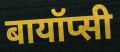
बायॉप्सी